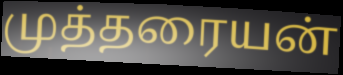
முத்தரையன்